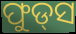
ଫୁଡ୍‌ସ